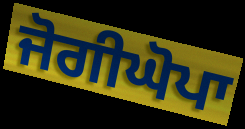
ਜੋਗੀਘੋਪਾ